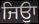
ਜਿਉਾ